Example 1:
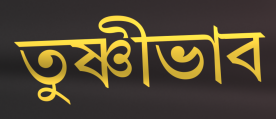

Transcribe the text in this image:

তুষ্ণীভাব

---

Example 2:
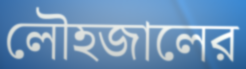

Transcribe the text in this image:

লৌহজালের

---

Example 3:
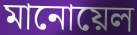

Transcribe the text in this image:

মানোয়েল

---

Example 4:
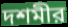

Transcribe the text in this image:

দশমীর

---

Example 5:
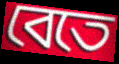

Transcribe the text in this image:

বেতে